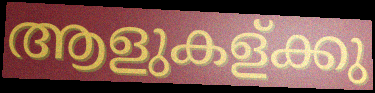
ആളുകള്ക്കു